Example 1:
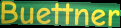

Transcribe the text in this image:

Buettner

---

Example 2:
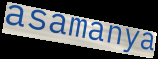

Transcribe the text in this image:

asamanya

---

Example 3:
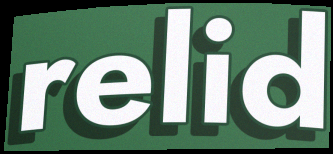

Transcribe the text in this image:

relid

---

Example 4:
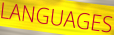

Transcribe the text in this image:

LANGUAGES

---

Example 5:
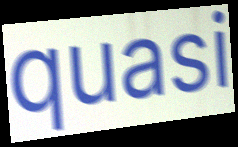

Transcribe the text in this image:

quasi